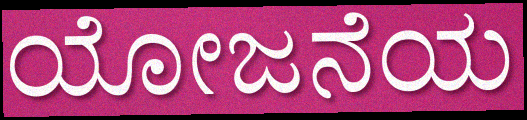
ಯೋಜನೆಯ